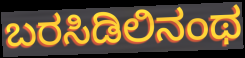
ಬರಸಿಡಿಲಿನಂಥ